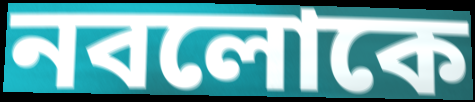
নবলোকে